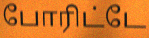
போரிட்டே